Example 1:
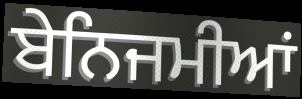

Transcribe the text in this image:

ਬੇਨਿਜਮੀਆਂ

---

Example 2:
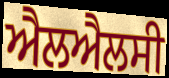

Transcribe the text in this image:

ਐਲਐਲਸੀ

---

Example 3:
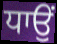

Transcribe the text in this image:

ਧਾਉਂ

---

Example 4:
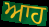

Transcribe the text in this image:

ਆਹ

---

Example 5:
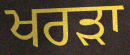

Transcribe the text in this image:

ਖਰੜਾ